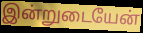
இன்றுடையேன்